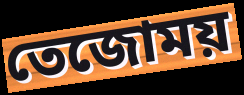
তেজোময়